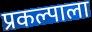
प्रकल्पाला